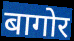
बागोर